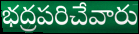
భద్రపరిచేవారు